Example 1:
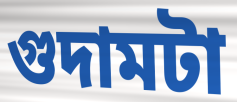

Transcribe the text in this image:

গুদামটা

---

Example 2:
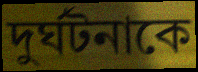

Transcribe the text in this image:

দুর্ঘটনাকে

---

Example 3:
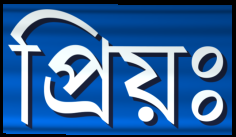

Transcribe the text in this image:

প্রিয়ঃ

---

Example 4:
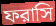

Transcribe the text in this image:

ফরাসি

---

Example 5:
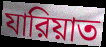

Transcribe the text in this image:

যারিয়াত